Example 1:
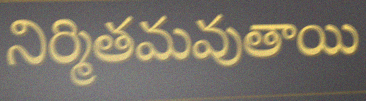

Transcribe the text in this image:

నిర్మితమవుతాయి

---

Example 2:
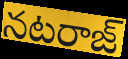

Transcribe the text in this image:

నటరాజ్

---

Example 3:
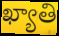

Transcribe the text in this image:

ఖ్యాతి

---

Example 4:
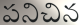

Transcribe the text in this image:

పనిచిన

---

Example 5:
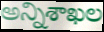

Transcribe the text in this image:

అన్నిశాఖల